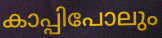
കാപ്പിപോലും